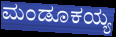
ಮಂಡೂಕಯ್ಯ